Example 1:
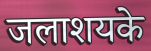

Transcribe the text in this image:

जलाशयके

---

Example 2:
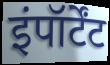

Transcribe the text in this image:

इंपॉर्टेंट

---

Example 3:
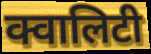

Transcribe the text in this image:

क्वालिटी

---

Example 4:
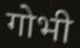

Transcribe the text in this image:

गोभी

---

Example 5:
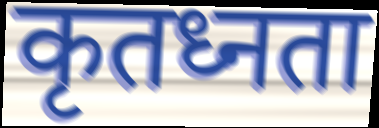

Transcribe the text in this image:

कृतध्नता